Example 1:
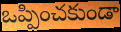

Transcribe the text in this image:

ఒప్పించకుండా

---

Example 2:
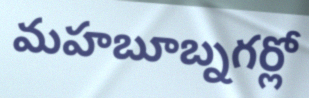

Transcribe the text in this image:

మహబూబ్నగర్లో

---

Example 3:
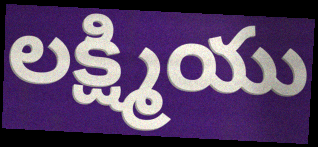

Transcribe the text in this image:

లక్ష్మియు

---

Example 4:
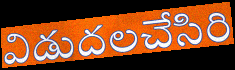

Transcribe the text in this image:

విడుదలచేసిరి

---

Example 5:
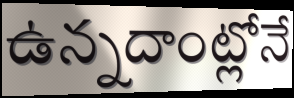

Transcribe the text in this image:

ఉన్నదాంట్లోనే